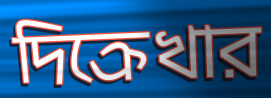
দিক্রেখার